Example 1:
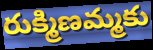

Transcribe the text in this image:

రుక్మిణమ్మకు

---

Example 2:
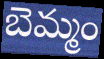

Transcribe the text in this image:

బెమ్మం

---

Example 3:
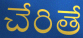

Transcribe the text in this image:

చేరితే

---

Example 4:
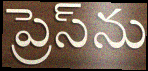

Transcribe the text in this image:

ప్రెస్‌ను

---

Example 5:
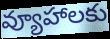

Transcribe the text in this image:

వ్యూహాలకు